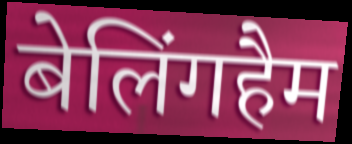
बेलिंगहैम